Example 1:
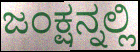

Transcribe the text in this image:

ಜಂಕ್ಷನ್ನಲ್ಲಿ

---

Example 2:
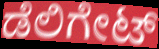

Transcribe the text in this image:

ಡೆಲಿಗೇಟ್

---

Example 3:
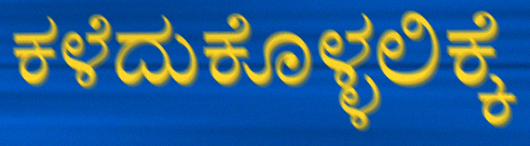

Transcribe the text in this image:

ಕಳೆದುಕೊಳ್ಳಲಿಕ್ಕೆ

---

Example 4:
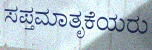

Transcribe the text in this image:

ಸಪ್ತಮಾತೃಕೆಯರು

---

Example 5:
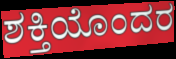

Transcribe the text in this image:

ಶಕ್ತಿಯೊಂದರ